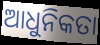
ଆଧୁନିକତା